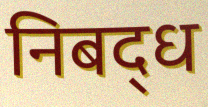
निबद्ध